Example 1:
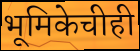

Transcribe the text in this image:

भूमिकेचीही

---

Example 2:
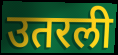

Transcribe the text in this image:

उतरली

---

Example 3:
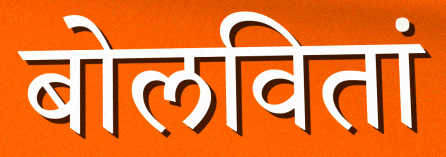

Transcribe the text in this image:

बोलवितां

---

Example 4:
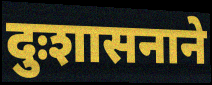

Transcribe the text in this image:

दुःशासनाने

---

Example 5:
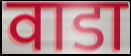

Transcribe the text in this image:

वाडा